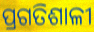
ପ୍ରଗତିଶାଳୀ